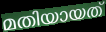
മതിയായത്